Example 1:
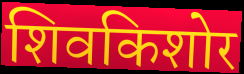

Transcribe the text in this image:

शिवकिशोर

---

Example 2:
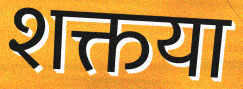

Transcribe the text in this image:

शक्तया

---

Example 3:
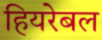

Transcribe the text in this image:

हियरेबल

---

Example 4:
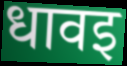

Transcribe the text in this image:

धावइ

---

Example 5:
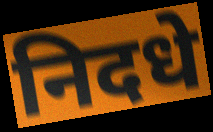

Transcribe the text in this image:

निदधे